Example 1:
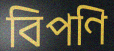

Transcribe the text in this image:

বিপণি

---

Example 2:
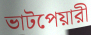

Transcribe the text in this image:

ভাটপেয়ারী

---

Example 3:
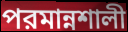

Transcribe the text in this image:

পরমান্নশালী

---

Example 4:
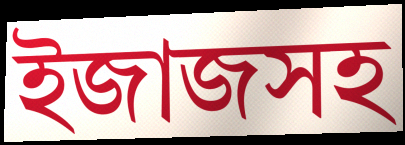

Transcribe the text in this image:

ইজাজসহ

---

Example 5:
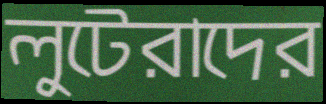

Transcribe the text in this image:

লুটেরাদের